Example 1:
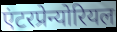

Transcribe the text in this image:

एंटरप्रेन्योरियल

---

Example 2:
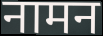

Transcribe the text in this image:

नामन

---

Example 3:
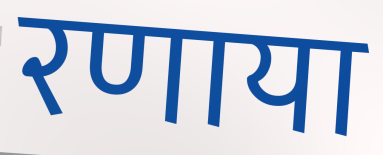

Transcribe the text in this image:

रणाया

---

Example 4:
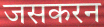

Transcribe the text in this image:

जसकरन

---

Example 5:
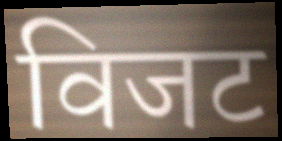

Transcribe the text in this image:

विजट